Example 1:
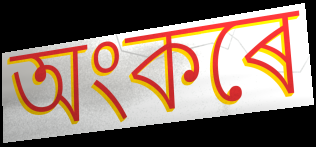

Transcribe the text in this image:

অংকৰে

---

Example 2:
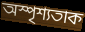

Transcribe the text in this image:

অস্পৃশ্যতাক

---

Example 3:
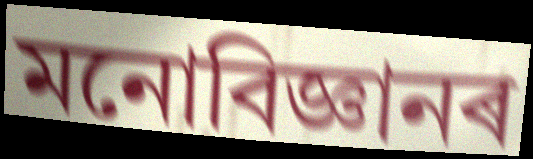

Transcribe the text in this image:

মনোবিজ্ঞানৰ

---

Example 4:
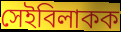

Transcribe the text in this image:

সেইবিলাকক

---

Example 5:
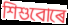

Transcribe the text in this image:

শিশুবোৰে